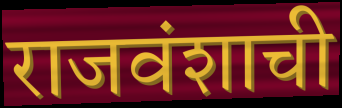
राजवंशाची